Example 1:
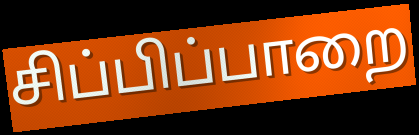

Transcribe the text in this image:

சிப்பிப்பாறை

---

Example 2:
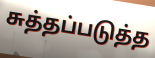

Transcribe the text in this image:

சுத்தப்படுத்த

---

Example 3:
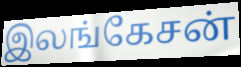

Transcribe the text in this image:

இலங்கேசன்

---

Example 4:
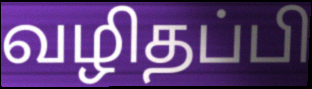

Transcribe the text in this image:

வழிதப்பி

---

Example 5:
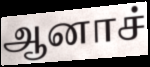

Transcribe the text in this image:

ஆனாச்